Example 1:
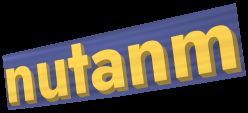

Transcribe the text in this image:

nutanm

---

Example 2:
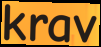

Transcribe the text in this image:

krav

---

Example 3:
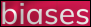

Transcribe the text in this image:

biases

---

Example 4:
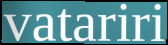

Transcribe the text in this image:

vatariri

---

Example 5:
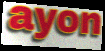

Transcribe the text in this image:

ayon